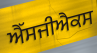
ਐੱਸਜੀਐਕਸ